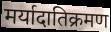
मर्यादातिक्रमण